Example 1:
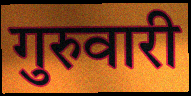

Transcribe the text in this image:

गुरुवारी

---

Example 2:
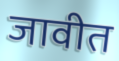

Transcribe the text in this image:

जावीत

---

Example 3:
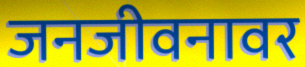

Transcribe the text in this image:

जनजीवनावर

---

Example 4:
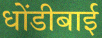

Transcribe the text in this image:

धोंडीबाई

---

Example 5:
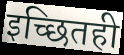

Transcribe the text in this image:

इच्छितही